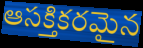
ఆసక్తికరమైన